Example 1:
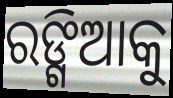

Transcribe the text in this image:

ରଙ୍ଗିଆକୁ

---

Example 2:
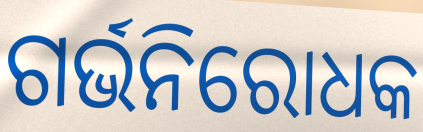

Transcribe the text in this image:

ଗର୍ଭନିରୋଧକ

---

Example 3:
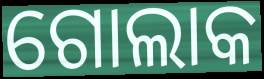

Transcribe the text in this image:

ଗୋଲାକ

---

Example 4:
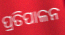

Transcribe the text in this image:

ପ୍ରତିପାଳନ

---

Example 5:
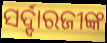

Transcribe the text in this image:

ସର୍ଦ୍ଦାରଜୀଙ୍କ